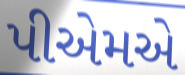
પીએમએ